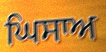
ਘਿਸਾਅ